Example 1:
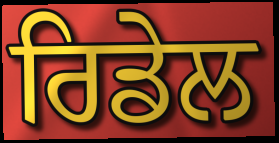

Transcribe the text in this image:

ਰਿਡੇਲ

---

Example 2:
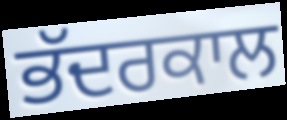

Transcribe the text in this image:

ਭੱਦਰਕਾਲ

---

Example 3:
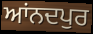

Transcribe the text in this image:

ਆਂਨਦਪੁਰ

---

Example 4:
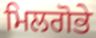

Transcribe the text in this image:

ਮਿਲਗੋਭੇ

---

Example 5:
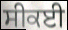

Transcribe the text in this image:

ਸੀਕਈ